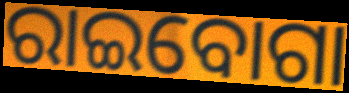
ରାଇବୋଗା